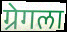
ग्रेगला